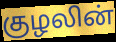
குழலின்